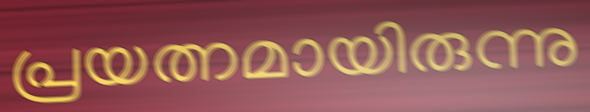
പ്രയത്നമായിരുന്നു